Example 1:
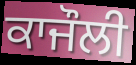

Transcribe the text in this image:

ਕਾਜੌਲੀ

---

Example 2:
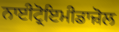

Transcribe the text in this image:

ਨਾਈਟ੍ਰੋਇਮੀਡਾਜ਼ੋਲ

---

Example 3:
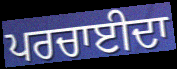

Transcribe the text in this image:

ਪਰਚਾਈਦਾ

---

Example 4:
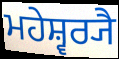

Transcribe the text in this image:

ਮਹੇਸ਼੍ਵਰ੍ਯੈ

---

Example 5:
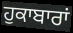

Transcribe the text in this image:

ਹੁਕਾਬਾਰਾਂ